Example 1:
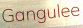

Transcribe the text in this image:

Gangulee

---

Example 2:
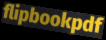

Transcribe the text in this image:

flipbookpdf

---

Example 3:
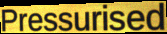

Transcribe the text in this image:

Pressurised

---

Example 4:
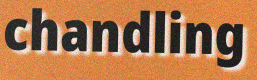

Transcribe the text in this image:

chandling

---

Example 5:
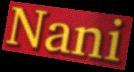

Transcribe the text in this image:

Nani